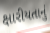
ક્ષારીયતાનું